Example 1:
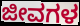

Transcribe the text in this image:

ಜೀವಗಳ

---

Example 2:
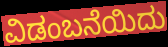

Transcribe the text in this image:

ವಿಡಂಬನೆಯಿದು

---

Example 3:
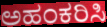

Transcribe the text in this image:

ಅಹಂಕರಿಸಿ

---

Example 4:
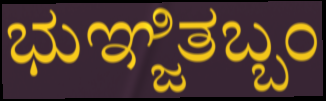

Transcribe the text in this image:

ಭುಞ್ಜಿತಬ್ಬಂ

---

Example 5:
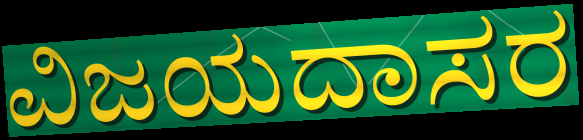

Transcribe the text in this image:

ವಿಜಯದಾಸರ